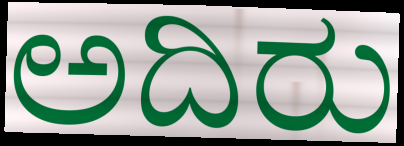
ಅದಿರು